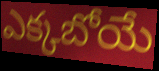
ఎక్కబోయే